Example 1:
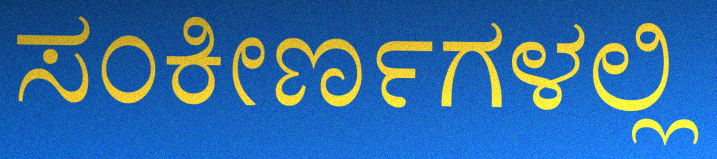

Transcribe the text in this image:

ಸಂಕೀರ್ಣಗಳಲ್ಲಿ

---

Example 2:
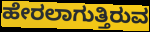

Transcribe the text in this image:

ಹೇರಲಾಗುತ್ತಿರುವ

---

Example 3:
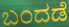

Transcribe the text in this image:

ಬಂದಡೆ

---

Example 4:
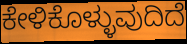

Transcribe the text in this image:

ಕೇಳಿಕೊಳ್ಳುವುದಿದೆ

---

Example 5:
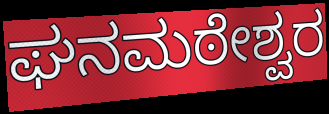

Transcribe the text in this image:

ಘನಮಠೇಶ್ವರ